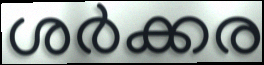
ശർക്കര